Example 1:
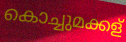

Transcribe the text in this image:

കൊച്ചുമക്കള്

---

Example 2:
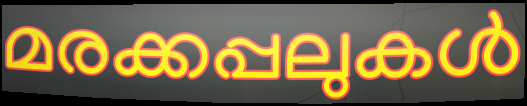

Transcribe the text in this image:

മരക്കപ്പലുകൾ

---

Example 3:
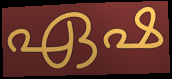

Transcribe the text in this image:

ഏഷ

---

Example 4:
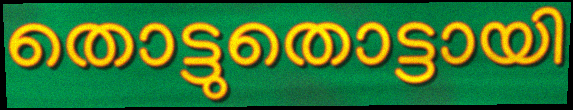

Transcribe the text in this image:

തൊട്ടുതൊട്ടായി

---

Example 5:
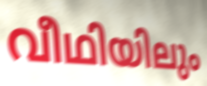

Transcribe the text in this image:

വീഥിയിലും